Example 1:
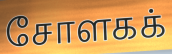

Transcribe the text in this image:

சோளகக்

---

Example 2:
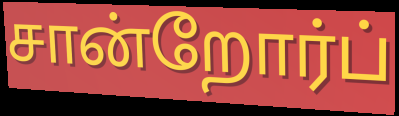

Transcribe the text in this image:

சான்றோர்ப்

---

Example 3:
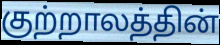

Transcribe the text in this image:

குற்றாலத்தின்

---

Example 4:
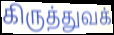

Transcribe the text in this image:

கிருத்துவக்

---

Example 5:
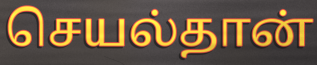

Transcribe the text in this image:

செயல்தான்